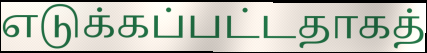
எடுக்கப்பட்டதாகத்